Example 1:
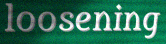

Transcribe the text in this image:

loosening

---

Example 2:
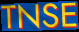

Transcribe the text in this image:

TNSE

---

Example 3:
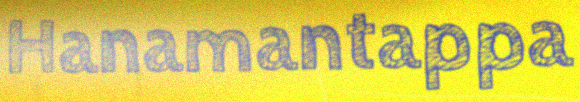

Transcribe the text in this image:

Hanamantappa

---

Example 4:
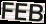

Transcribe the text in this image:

FEB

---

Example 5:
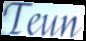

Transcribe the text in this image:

Teun